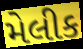
મેલીક